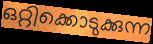
ഒറ്റിക്കൊടുക്കുന്ന